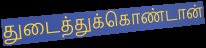
துடைத்துக்கொண்டான்